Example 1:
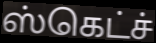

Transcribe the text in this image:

ஸ்கெட்ச்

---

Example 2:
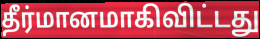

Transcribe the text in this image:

தீர்மானமாகிவிட்டது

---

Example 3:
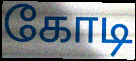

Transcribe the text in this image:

கோடி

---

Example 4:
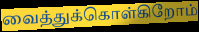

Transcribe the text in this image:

வைத்துக்கொள்கிறோம்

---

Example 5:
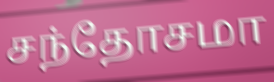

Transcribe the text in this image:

சந்தோசமா